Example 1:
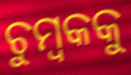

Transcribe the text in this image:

ଚୁମ୍ବକକୁ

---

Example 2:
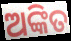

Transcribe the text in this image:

ଅଙ୍କିତ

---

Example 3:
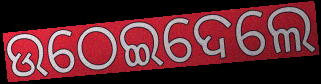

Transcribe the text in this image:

ଉଠେଇଦେଲେ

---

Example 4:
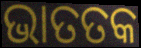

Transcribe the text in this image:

ଭାତତକ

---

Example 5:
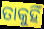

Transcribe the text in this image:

ତାକୁହିଁ